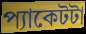
প্যাকেটটা